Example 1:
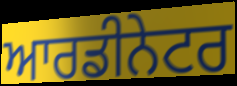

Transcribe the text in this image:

ਆਰਡੀਨੇਟਰ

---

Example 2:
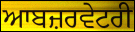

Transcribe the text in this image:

ਆਬਜ਼ਰਵੇਟਰੀ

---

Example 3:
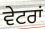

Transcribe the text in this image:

ਵੇਟਰਾਂ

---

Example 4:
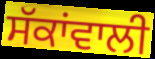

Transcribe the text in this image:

ਸੱਕਾਂਵਾਲੀ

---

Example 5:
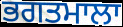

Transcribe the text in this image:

ਭਗਤਮਾਲਾ